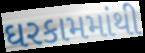
ઘરકામમાંથી